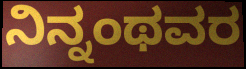
ನಿನ್ನಂಥವರ